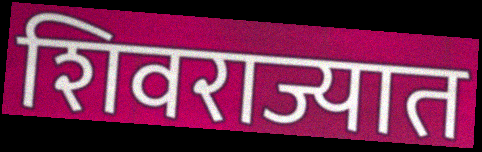
शिवराज्यात